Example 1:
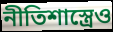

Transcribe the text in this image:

নীতিশাস্ত্রেও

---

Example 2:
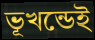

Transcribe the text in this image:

ভূখন্ডেই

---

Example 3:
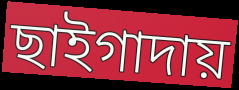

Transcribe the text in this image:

ছাইগাদায়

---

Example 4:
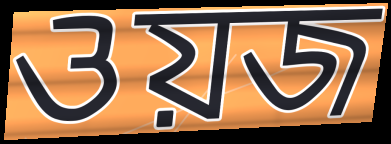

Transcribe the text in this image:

ওয়জ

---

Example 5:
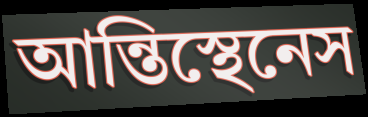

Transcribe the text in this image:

আন্তিস্থেনেস